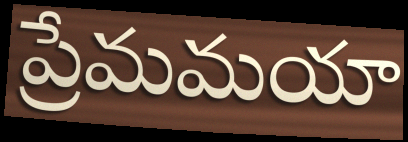
ప్రేమమయా